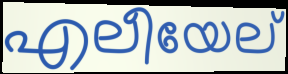
എലീയേല്